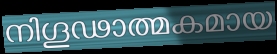
നിഗൂഢാത്മകമായ